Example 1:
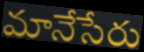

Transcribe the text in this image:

మానేసేరు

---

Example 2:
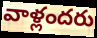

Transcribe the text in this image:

వాళ్లందరు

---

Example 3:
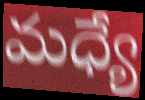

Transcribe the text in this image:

మధ్యే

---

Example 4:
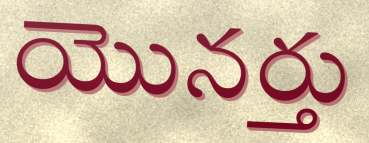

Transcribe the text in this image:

యొనర్తు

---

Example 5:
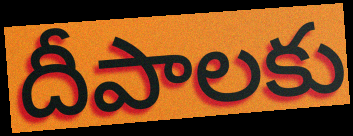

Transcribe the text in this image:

దీపాలకు